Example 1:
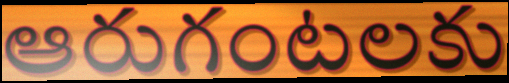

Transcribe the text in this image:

ఆరుగంటలకు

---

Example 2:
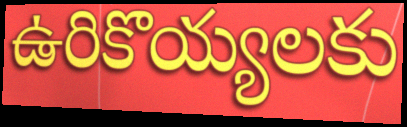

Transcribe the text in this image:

ఉరికొయ్యలకు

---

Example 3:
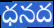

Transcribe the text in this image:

ధనద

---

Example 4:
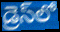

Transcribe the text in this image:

డ్రెస్‌లో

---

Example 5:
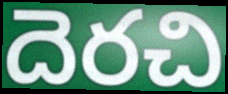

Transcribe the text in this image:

దెరచి